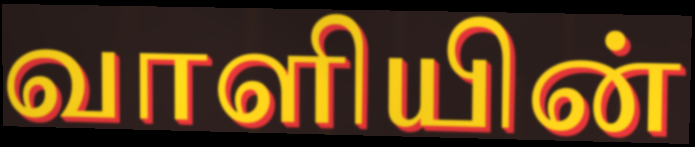
வாளியின்